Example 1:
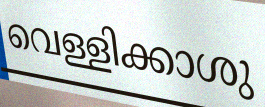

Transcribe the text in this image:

വെള്ളിക്കാശു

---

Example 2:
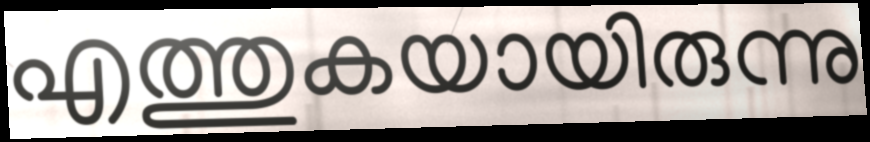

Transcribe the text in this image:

എത്തുകയായിരുന്നു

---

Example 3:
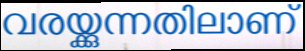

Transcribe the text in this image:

വരയ്ക്കുന്നതിലാണ്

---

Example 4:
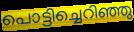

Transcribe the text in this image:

പൊട്ടിച്ചെറിഞ്ഞു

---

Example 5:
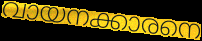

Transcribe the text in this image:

വായനക്കാരനെ